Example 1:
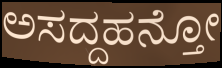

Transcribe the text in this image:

ಅಸದ್ದಹನ್ತೋ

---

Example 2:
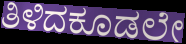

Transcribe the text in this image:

ತಿಳಿದಕೂಡಲೇ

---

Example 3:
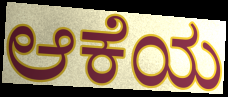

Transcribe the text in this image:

ಆಕೆಯ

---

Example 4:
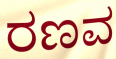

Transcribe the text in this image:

ರಣವ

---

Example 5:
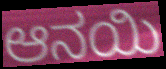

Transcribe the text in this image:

ಆನಯಿ